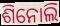
ଶିନୋଲି